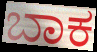
ಬಾಕ